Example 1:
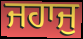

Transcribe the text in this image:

ਜਹਾਜੁ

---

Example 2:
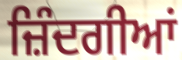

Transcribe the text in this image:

ਜ਼ਿੰਦਗੀਆਂ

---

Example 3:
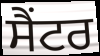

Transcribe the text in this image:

ਸੈਂਟਰ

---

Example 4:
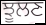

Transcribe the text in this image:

ਝੂਲਣ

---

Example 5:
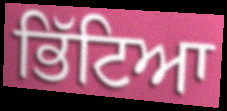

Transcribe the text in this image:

ਭਿੱਟਿਆ